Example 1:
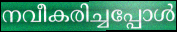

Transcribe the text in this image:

നവീകരിച്ചപ്പോൾ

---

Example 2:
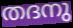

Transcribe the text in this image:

തദനു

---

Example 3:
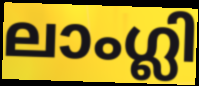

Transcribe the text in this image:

ലാംഗ്ലി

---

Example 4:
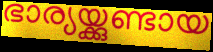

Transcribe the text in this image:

ഭാര്യയ്ക്കുണ്ടായ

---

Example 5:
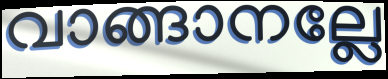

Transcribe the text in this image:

വാങ്ങാനല്ലേ